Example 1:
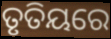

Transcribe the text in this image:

ତୃତିୟରେ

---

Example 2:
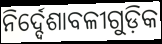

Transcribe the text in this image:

ନିର୍ଦ୍ଦେଶାବଳୀଗୁଡ଼ିକ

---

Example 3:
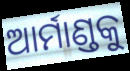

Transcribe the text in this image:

ଆର୍ମାଣ୍ଡକୁ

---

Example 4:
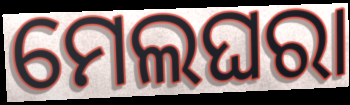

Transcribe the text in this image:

ମେଲଘରା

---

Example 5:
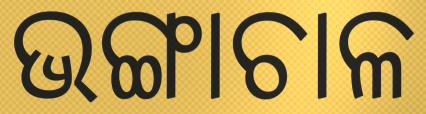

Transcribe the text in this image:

ଭଙ୍ଗାଚାଳ